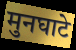
मुनघाटे